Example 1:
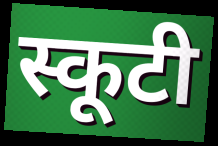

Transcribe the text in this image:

स्कूटी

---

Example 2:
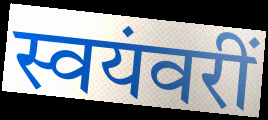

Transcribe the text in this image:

स्वयंवरीं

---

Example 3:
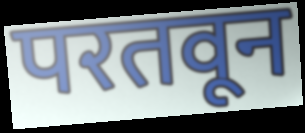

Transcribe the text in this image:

परतवून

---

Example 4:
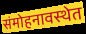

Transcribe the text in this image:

संमोहनावस्थेत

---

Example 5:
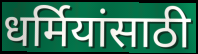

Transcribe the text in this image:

धर्मियांसाठी